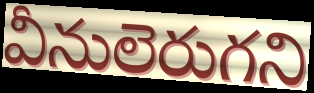
వీనులెరుగని